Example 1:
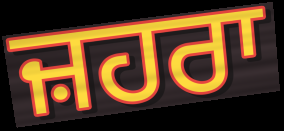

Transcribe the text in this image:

ਜ਼ਹਰਾ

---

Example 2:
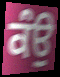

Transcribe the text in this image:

ਕੰਉ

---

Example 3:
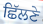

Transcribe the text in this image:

ਛਿੱਲਣੇ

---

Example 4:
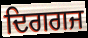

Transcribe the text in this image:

ਦਿਗਗਜ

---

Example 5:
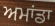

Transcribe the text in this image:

ਅਮਾਂਡਾ